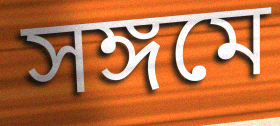
সঙ্গমে